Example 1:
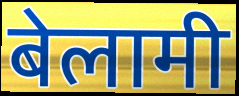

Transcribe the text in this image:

बेलामी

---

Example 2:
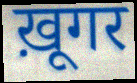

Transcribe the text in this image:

ख़ूगर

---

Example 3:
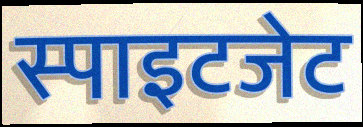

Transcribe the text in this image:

स्पाइटजेट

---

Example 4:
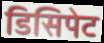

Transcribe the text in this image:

डिसिपेट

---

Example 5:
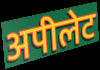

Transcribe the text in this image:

अपीलेट